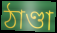
ঠাণ্ডা